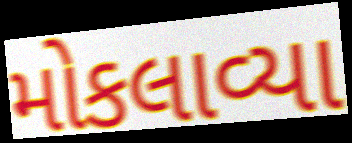
મોકલાવ્યા